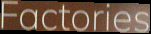
Factories